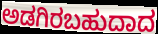
ಅಡಗಿರಬಹುದಾದ